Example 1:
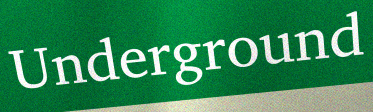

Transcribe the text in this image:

Underground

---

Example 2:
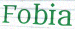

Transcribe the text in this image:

Fobia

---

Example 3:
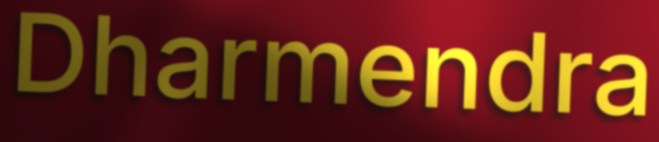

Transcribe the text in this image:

Dharmendra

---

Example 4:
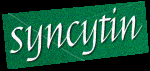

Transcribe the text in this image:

syncytin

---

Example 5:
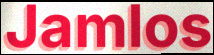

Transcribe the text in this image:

Jamlos